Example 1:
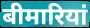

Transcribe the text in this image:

बीमारियां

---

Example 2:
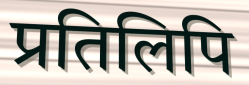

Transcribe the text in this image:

प्रतिलिपि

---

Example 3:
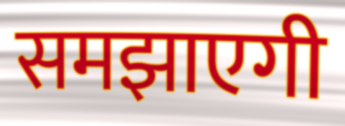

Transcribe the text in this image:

समझाएगी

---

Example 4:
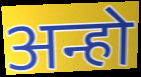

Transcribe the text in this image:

अन्हो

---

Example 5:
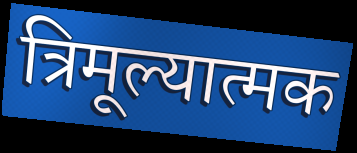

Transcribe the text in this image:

त्रिमूल्यात्मक